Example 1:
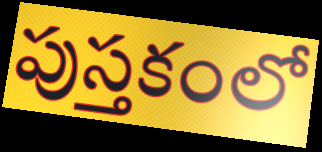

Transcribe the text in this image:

పుస్తకంలో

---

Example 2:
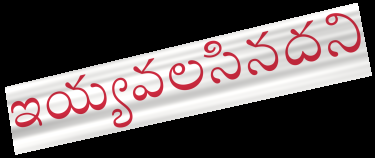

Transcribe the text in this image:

ఇయ్యవలసినదని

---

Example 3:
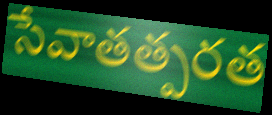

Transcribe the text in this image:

సేవాతత్పరత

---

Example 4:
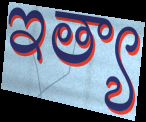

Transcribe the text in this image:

ఇత్యా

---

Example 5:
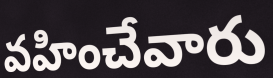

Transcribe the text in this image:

వహించేవారు